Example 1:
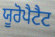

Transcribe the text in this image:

ਯੂਰੋਪੈਟੈਟ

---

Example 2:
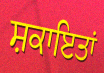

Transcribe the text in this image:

ਸ਼ਕਾਇਤਾਂ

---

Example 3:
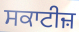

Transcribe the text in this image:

ਸਕਾਟੀਜ਼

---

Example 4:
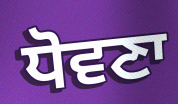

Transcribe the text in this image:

ਧੋਵਣਾ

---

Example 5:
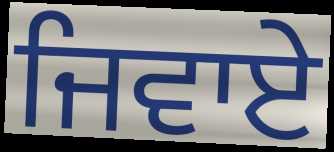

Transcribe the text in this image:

ਜਿਵਾਏ